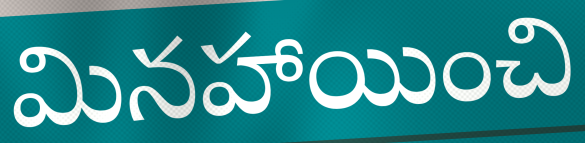
మినహాయించి